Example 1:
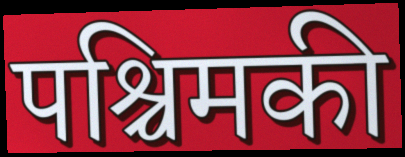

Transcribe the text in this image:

पश्चिमकी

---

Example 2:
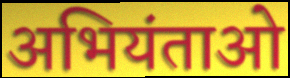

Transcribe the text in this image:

अभियंताओ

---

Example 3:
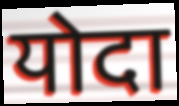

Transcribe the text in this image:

योदा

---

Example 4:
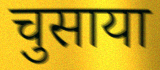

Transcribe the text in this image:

चुसाया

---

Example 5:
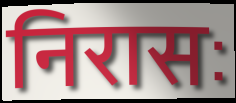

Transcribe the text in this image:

निरासः